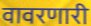
वावरणारी